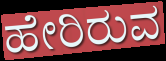
ಹೇರಿರುವ